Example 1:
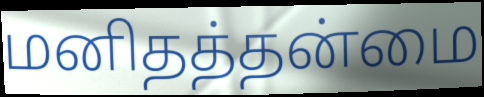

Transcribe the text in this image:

மனிதத்தன்மை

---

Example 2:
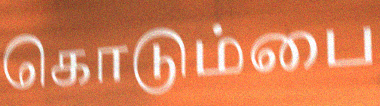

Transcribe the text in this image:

கொடும்பை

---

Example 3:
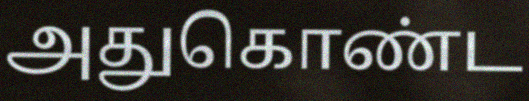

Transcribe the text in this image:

அதுகொண்ட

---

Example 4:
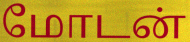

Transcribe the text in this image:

மோடன்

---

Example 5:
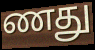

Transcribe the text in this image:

ணது